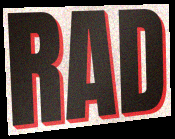
RAD